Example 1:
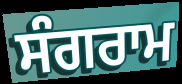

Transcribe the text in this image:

ਸੰਗਰਾਮ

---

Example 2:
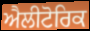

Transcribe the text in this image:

ਐਲੀਟੋਰਿਕ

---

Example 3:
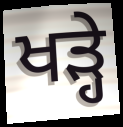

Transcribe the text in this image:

ਖਡ਼੍ਹੇ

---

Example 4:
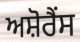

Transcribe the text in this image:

ਅਸ਼ੋਰੈਂਸ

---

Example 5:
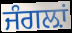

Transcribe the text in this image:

ਜੰਗਲ਼ਾਂ